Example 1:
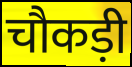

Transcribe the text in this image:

चौकड़ी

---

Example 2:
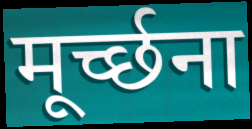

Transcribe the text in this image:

मूर्च्छना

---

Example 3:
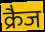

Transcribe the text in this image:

क्रैज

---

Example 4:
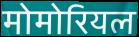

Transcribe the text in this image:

मोमोरियल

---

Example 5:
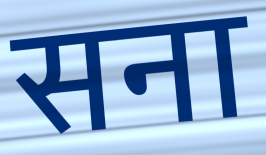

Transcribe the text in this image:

सना